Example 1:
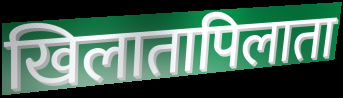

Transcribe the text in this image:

खिलातापिलाता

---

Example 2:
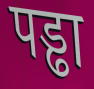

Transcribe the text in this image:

पड्ढा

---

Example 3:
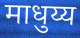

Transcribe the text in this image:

माधुय्य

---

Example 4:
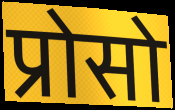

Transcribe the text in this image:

प्रोसो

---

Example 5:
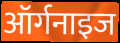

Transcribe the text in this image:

ऑर्गनाइज